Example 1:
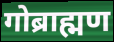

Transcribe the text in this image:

गोब्राह्मण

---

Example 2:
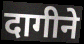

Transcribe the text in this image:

दागीने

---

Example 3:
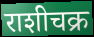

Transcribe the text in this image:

राशीचक्र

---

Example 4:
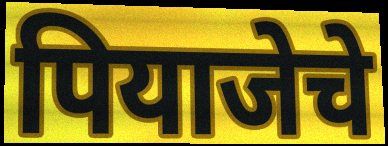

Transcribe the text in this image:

पियाजेचे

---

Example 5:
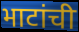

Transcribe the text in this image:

भाटांची